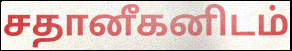
சதானீகனிடம்